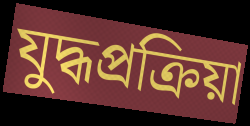
যুদ্ধপ্রক্রিয়া